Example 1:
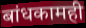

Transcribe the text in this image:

बांधकामही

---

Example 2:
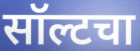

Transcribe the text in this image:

सॉल्टचा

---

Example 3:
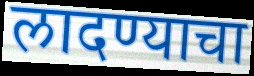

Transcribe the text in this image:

लादण्याचा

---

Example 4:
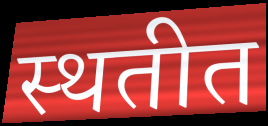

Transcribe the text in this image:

स्थतीत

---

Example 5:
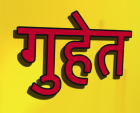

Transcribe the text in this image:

गुहेत